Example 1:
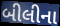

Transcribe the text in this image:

બીલીના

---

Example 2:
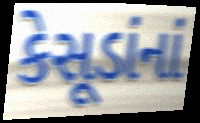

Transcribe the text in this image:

કેસૂડાંનાં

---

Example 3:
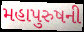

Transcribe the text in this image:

મહાપુરુષની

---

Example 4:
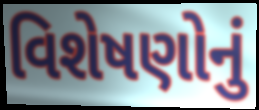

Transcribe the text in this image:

વિશેષણોનું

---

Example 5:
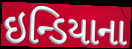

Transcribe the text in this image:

ઇન્ડિયાના